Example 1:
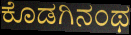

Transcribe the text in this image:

ಕೊಡಗಿನಂಥ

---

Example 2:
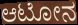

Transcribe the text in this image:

ಆಟೋನ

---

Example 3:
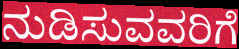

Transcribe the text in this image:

ನುಡಿಸುವವರಿಗೆ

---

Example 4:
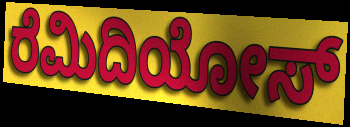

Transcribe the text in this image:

ರೆಮಿದಿಯೋಸ್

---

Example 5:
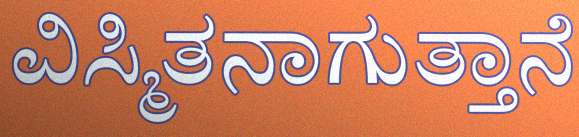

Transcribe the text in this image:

ವಿಸ್ಮಿತನಾಗುತ್ತಾನೆ